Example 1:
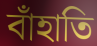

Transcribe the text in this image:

বাঁহাতি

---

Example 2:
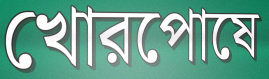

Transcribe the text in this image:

খোরপোষে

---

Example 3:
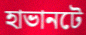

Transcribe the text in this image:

হাভানটে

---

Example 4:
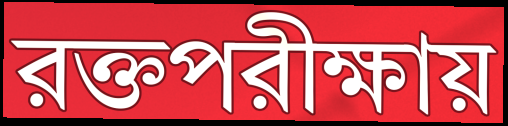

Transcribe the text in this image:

রক্তপরীক্ষায়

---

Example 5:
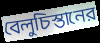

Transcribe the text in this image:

বেলুচিস্তানের